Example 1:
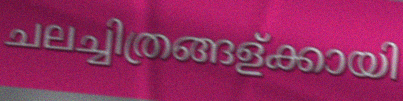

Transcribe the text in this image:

ചലച്ചിത്രങ്ങള്ക്കായി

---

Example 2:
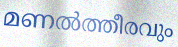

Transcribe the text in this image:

മണൽത്തീരവും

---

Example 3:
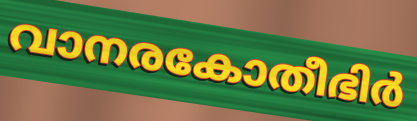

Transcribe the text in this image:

വാനരകോതീഭിർ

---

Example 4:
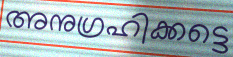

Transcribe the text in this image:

അനുഗ്രഹിക്കട്ടെ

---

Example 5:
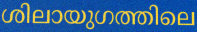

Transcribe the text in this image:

ശിലായുഗത്തിലെ